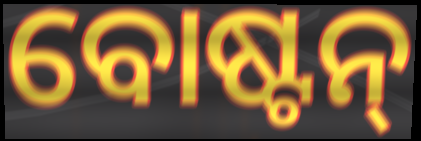
ବୋଷ୍ଟନ୍